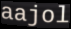
aajol